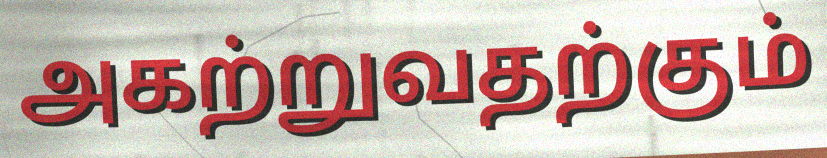
அகற்றுவதற்கும்